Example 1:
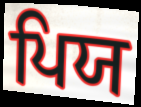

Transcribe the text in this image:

ਪਿਯ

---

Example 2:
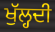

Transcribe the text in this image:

ਖੁੱਲ੍ਹਦੀ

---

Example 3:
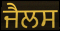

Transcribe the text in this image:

ਜੈਲਸ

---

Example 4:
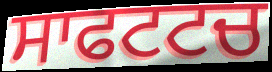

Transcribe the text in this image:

ਸਾਫਟਟਚ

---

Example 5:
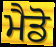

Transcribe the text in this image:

ਮੈਡੋ